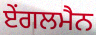
ਏਂਗਲਮੈਨ